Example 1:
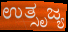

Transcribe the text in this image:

ಉತ್ಸೃಜ್ಯ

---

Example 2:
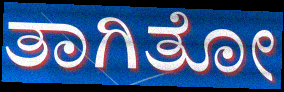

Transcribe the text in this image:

ತಾಗಿತೋ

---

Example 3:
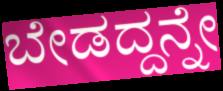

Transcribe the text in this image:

ಬೇಡದ್ದನ್ನೇ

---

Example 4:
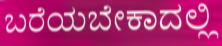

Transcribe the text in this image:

ಬರೆಯಬೇಕಾದಲ್ಲಿ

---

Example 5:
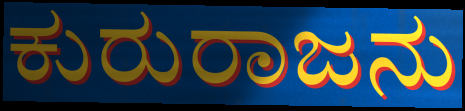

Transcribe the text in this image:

ಕುರುರಾಜನು